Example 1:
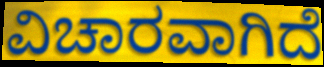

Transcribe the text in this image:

ವಿಚಾರವಾಗಿದೆ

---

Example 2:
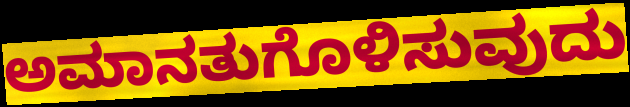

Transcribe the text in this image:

ಅಮಾನತುಗೊಳಿಸುವುದು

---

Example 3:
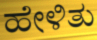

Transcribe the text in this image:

ಹೇಳಿತು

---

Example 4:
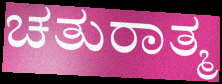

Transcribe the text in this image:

ಚತುರಾತ್ಮ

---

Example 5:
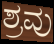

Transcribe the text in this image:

ಶ್ರವು